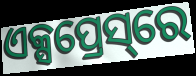
ଏକ୍ସପ୍ରେସ୍‌ରେ